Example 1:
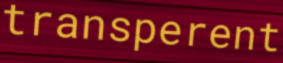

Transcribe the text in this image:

transperent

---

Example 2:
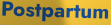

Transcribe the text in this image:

Postpartum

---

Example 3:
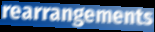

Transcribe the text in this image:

rearrangements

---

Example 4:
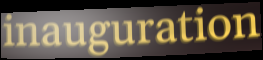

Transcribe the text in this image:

inauguration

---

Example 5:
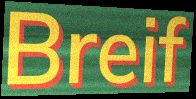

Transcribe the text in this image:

Breif